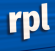
rpl